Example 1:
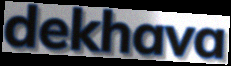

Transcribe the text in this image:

dekhava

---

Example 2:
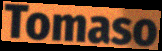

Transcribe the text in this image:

Tomaso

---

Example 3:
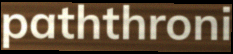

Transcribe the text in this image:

paththroni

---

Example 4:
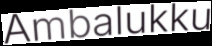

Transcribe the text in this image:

Ambalukku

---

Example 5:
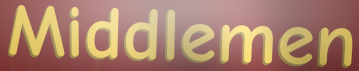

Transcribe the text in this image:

Middlemen